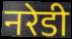
नरेडी